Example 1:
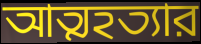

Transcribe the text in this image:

আত্মহত্যার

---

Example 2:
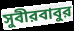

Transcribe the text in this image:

সুবীরবাবুর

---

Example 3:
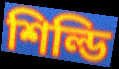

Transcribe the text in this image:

শিল্ডি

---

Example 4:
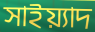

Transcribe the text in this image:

সাইয়্যাদ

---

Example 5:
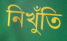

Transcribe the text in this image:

নিখুঁতি